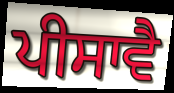
ਪੀਸਾਵੈ